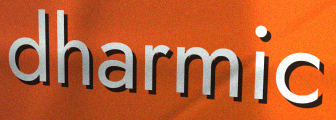
dharmic